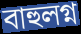
বাহুলগ্ন